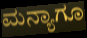
ಮನ್ಯಾಗೂ